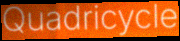
Quadricycle